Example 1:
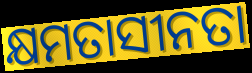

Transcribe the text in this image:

କ୍ଷମତାସୀନତା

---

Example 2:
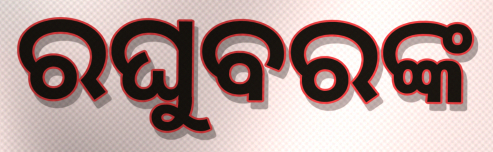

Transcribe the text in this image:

ରଘୁବରଙ୍କ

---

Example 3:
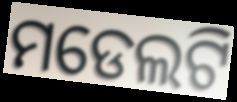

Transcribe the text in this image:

ମଡେଲଟି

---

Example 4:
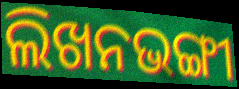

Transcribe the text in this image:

ଲିଖନଭଙ୍ଗୀ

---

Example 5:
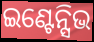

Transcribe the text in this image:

ଇଣ୍ଟେନ୍ସିଭ